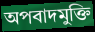
অপবাদমুক্তি